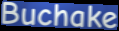
Buchake